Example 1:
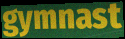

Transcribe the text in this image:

gymnast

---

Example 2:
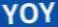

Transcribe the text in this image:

YOY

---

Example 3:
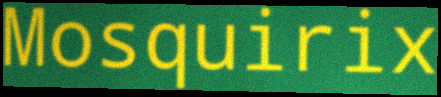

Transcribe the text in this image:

Mosquirix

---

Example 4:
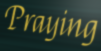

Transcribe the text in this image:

Praying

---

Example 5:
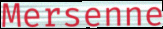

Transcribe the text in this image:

Mersenne